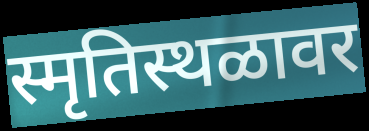
स्मृतिस्थळावर